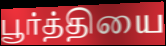
பூர்த்தியை